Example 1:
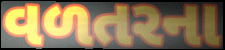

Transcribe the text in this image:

વળતરના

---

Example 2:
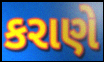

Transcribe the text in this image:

કરાણે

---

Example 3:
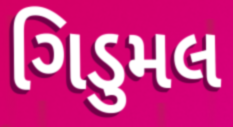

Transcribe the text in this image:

ગિડુમલ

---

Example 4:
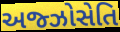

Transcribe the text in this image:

અજ્ઝોસેતિ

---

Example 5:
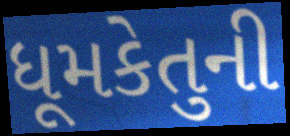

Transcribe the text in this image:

ધૂમકેતુની